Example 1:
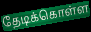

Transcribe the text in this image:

தேடிக்கொள்ள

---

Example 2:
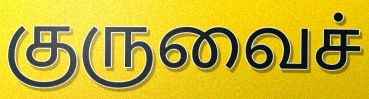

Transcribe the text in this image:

குருவைச்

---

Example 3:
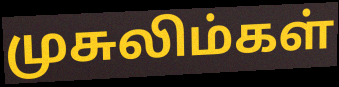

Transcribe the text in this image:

முசுலிம்கள்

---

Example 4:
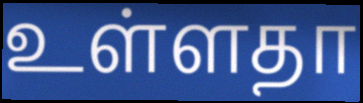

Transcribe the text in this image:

உள்ளதா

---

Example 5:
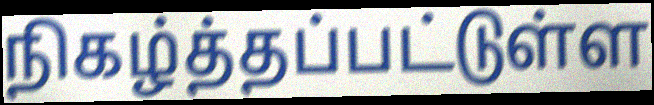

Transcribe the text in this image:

நிகழ்த்தப்பட்டுள்ள